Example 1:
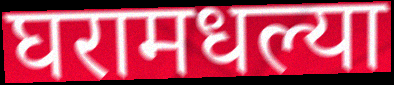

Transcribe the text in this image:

घरामधल्या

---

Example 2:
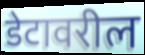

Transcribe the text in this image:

डेटावरील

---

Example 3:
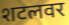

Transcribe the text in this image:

शटलवर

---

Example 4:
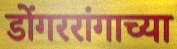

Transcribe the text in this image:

डोंगररांगाच्या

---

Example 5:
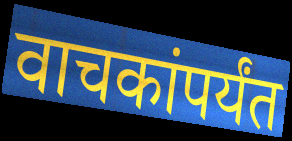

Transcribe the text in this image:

वाचकांपर्यंत